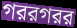
গররগরর